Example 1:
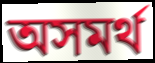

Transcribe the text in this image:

অসমর্থ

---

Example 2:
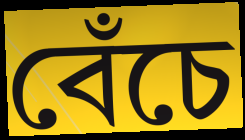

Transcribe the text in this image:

বেঁচে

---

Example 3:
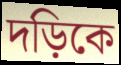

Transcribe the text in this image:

দড়িকে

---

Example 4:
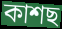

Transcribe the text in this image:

কাশছ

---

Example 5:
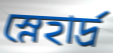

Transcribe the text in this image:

স্নেহার্দ্র